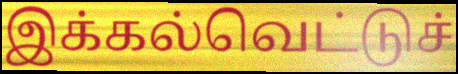
இக்கல்வெட்டுச்